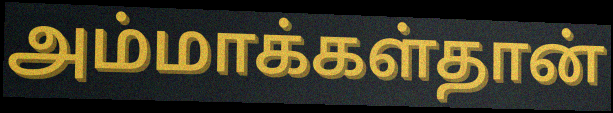
அம்மாக்கள்தான்